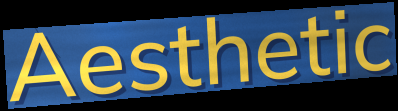
Aesthetic